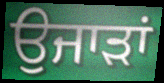
ਉਜਾੜਾਂ